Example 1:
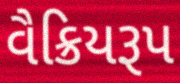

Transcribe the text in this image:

વૈક્રિયરૂપ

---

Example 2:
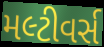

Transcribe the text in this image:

મલ્ટીવર્સ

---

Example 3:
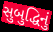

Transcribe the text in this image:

સુબુદ્ધિનું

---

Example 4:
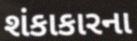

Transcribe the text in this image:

શંકાકારના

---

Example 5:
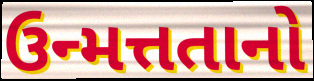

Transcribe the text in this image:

ઉન્મત્તતાનો